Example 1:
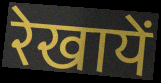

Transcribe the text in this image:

रेखायें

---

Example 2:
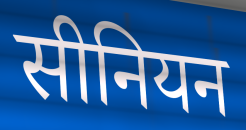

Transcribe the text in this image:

सीनियन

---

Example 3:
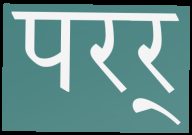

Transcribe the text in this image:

परर्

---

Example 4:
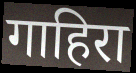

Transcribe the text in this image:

गाहिरा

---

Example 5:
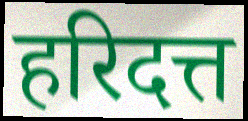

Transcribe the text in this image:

हरिदत्त